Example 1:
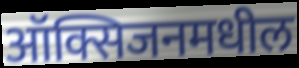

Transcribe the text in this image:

ऑक्सिजनमधील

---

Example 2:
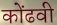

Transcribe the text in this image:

कोंढवी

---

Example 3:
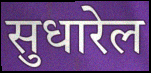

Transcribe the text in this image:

सुधारेल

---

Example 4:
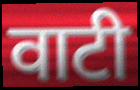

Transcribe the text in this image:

वाटी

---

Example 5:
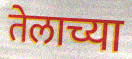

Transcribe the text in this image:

तेलाच्या